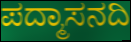
ಪದ್ಮಾಸನದಿ